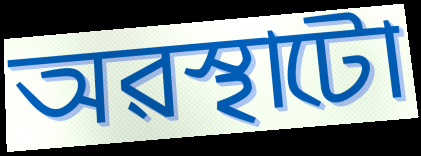
অৱস্থাটো